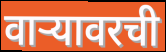
वार्‍यावरची